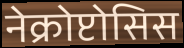
नेक्रोप्टोसिस